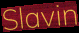
Slavin